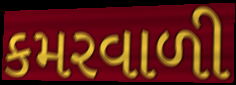
કમરવાળી